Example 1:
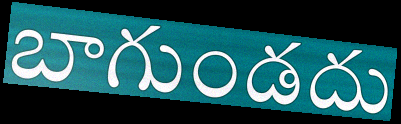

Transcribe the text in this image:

బాగుండదు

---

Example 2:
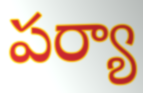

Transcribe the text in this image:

పర్యా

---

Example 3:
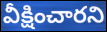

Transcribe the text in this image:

వీక్షించారని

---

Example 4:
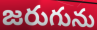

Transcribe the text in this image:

జరుగును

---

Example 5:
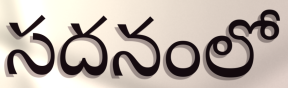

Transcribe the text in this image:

సదనంలో